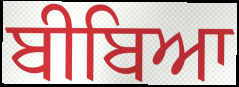
ਬੀਬਿਆ